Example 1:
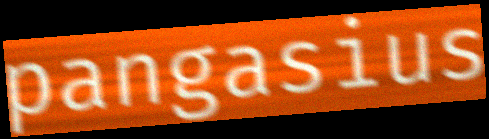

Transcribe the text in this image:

pangasius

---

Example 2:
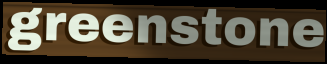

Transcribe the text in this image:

greenstone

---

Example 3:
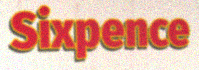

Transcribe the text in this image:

Sixpence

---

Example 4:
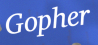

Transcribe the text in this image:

Gopher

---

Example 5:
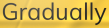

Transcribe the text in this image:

Gradually